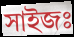
সাইজঃ